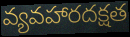
వ్యవహారదక్షత